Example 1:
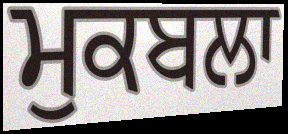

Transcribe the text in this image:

ਮੁਕਬਲਾ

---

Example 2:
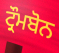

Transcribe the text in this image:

ਟ੍ਰੌਮਬੋਨ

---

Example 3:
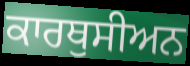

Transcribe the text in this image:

ਕਾਰਥੁਸੀਅਨ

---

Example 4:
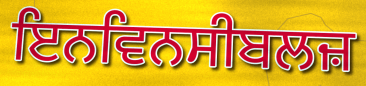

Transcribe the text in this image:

ਇਨਵਿਨਸੀਬਲਜ਼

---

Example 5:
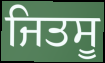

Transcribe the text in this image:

ਜਿਤਸੂ